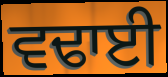
ਵਢਾਈ